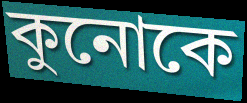
কুনোকে